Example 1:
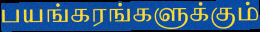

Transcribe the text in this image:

பயங்கரங்களுக்கும்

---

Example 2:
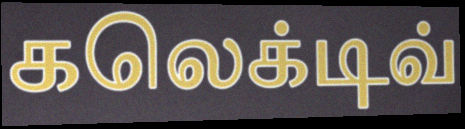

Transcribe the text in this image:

கலெக்டிவ்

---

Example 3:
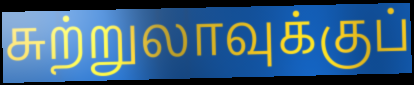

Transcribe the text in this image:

சுற்றுலாவுக்குப்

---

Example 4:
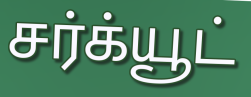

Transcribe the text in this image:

சர்க்யூட்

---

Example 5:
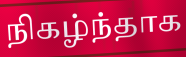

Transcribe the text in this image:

நிகழ்ந்தாக